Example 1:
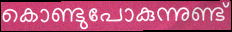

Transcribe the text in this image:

കൊണ്ടുപോകുന്നുണ്ട്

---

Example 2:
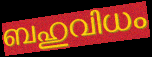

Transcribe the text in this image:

ബഹുവിധം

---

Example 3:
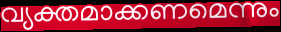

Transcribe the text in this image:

വ്യക്തമാക്കണമെന്നും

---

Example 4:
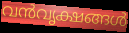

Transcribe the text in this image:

വൻവൃക്ഷങ്ങൾ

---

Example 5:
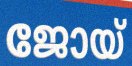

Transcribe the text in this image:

ജോയ്